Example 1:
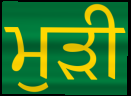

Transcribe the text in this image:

ਮੁੜੀ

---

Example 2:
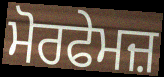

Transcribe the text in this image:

ਮੋਰਫੇਮਜ਼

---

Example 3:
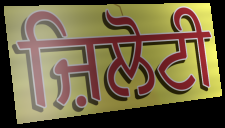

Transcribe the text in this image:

ਜ਼ਿਲੋਟੀ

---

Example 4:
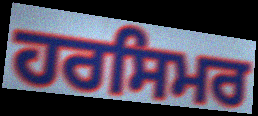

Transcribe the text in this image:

ਹਰਸਿਮਰ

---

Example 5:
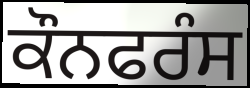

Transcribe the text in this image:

ਕੌਨਫਰੰਸ